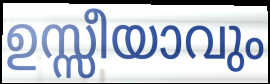
ഉസ്സീയാവും